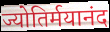
ज्योतिर्मयानंद